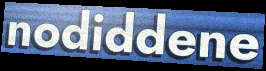
nodiddene